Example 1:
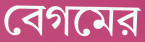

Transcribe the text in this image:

বেগমের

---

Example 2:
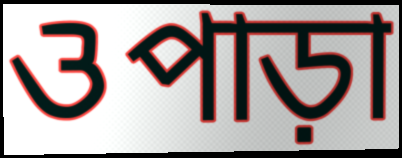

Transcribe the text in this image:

ওপাড়া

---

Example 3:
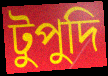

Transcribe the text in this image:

টুপুদি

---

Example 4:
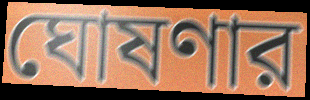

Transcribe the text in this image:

ঘোষণার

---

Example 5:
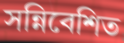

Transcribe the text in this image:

সন্নিবেশিত